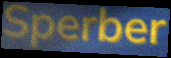
Sperber